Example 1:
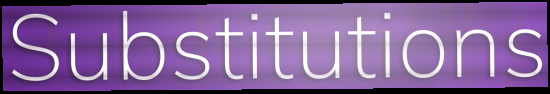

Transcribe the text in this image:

Substitutions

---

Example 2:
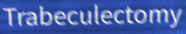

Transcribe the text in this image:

Trabeculectomy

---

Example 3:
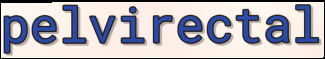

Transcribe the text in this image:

pelvirectal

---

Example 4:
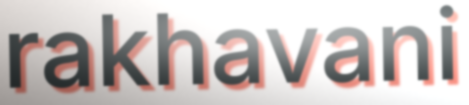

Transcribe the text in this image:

rakhavani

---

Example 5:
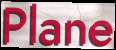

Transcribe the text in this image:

Plane